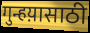
गुन्हय़ासाठी